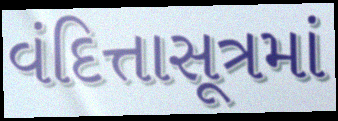
વંદિત્તાસૂત્રમાં